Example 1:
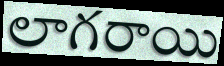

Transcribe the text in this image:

లాగరాయి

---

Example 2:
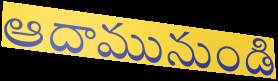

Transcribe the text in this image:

ఆదామునుండి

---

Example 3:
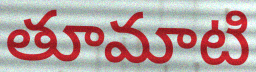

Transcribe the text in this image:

తూమాటి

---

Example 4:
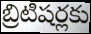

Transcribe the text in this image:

బ్రిటిషర్లకు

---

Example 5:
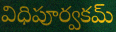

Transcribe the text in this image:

విధిపూర్వకమ్